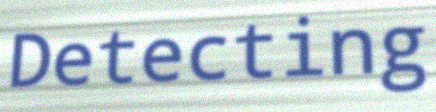
Detecting